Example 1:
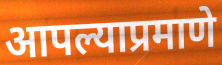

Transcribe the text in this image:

आपल्याप्रमाणे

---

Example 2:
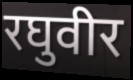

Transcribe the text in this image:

रघुवीर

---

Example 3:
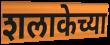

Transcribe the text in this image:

शलाकेच्या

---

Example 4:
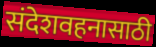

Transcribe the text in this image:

संदेशवहनासाठी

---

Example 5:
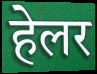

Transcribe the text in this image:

हेलर